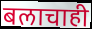
बलाचाही